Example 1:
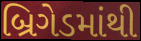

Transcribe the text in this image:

બ્રિગેડમાંથી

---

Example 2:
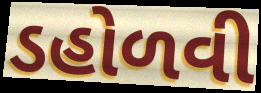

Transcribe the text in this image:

ડહોળવી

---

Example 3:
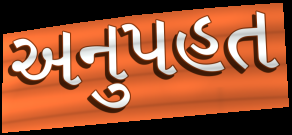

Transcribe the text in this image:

અનુપહત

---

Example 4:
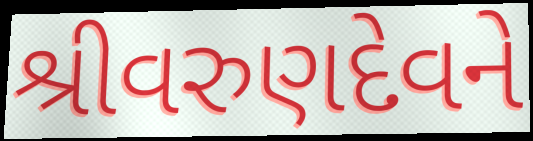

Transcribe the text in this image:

શ્રીવરુણદેવને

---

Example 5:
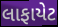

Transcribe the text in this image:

લાફાયેટ